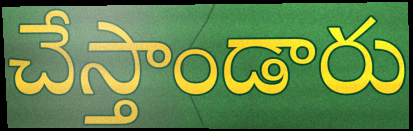
చేస్తాండారు